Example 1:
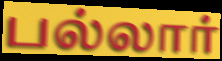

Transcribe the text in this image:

பல்லார்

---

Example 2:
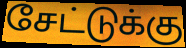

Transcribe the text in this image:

சேட்டுக்கு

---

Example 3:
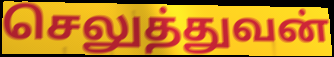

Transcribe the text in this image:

செலுத்துவன்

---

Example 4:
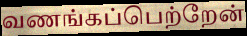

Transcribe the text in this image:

வணங்கப்பெற்றேன்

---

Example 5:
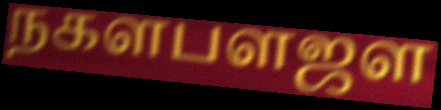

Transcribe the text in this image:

நகளபளஜள